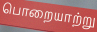
பொறையாற்று